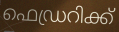
ഫെഡ്രറിക്ക്